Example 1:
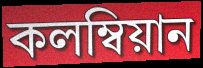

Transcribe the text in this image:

কলম্বিয়ান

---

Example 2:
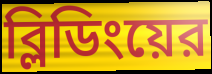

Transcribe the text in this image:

ব্লিডিংয়ের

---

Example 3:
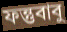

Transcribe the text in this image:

ফন্তুবাবু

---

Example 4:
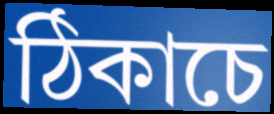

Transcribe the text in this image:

ঠিকাচে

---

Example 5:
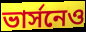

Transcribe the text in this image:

ভার্সনেও